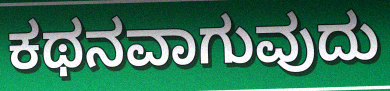
ಕಥನವಾಗುವುದು